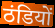
ठंडियों